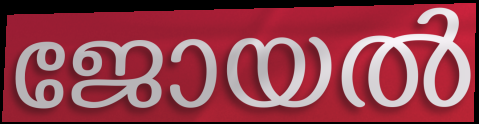
ജോയൽ